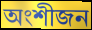
অংশীজন